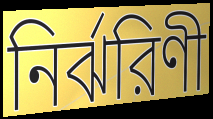
নির্ঝরিণী